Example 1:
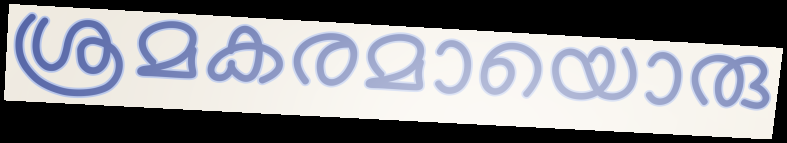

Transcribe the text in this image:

ശ്രമകരമായൊരു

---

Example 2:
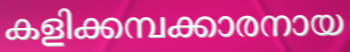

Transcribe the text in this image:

കളിക്കമ്പക്കാരനായ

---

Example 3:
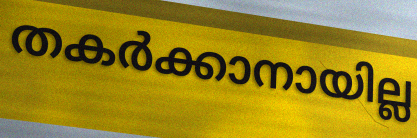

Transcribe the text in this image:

തകർക്കാനായില്ല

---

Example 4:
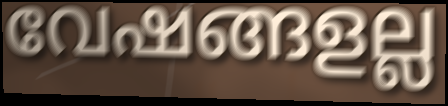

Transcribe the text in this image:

വേഷങ്ങളല്ല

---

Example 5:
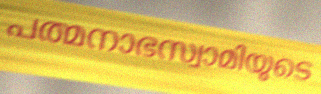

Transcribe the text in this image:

പത്മനാഭസ്വാമിയുടെ